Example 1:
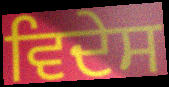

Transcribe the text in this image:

ਵਿਦੇਸ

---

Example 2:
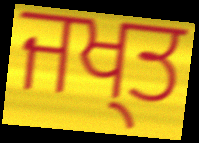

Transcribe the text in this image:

ਜਖ੍ਤ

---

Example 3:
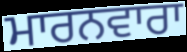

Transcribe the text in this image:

ਮਾਰਨਵਾਰਾ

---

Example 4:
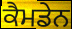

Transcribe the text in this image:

ਕੈਮਡੇਨ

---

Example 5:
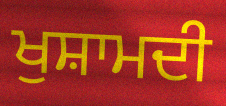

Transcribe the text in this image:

ਖੁਸ਼ਾਮਦੀ